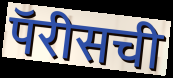
पॅरीसची